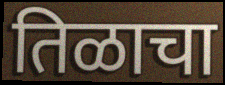
तिळाचा